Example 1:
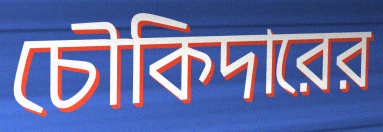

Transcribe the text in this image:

চৌকিদারের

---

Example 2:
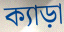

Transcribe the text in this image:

ক্যাড়া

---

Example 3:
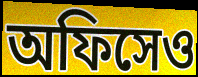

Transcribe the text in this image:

অফিসেও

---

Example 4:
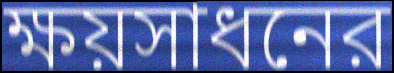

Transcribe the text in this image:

ক্ষয়সাধনের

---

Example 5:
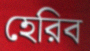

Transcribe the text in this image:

হেরিব